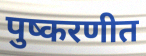
पुष्करणीत